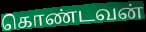
கொண்டவன்